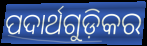
ପଦାର୍ଥଗୁଡ଼ିକର